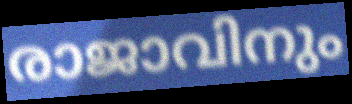
രാജാവിനും